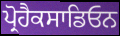
ਪ੍ਰੋਹੈਕਸਾਡਿਓਨ